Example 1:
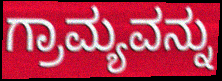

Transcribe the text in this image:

ಗ್ರಾಮ್ಯವನ್ನು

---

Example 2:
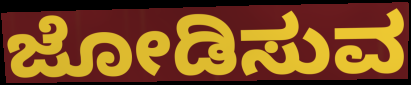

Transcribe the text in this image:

ಜೋಡಿಸುವ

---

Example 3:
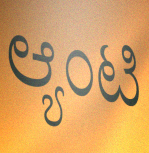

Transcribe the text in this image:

ಆ್ಯಂಟಿ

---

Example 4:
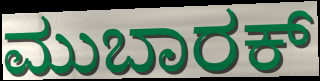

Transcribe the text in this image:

ಮುಬಾರಕ್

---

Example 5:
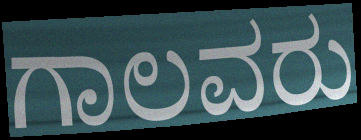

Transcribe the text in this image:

ಗಾಲವರು